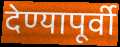
देण्यापूर्वी